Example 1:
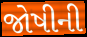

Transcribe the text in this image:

જોષીની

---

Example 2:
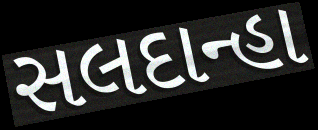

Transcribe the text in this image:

સલદાન્હા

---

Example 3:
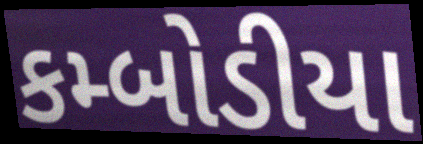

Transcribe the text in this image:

કમ્બોડીયા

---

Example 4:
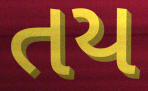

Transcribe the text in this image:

તય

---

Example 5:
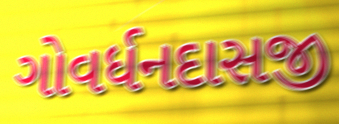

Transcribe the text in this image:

ગોવર્ધનદાસજી